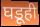
घडूही